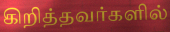
கிறித்தவர்களில்